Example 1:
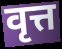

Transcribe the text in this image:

वृत्त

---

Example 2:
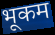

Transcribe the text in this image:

भूकम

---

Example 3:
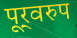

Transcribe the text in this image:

पूर्वरुप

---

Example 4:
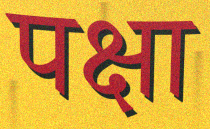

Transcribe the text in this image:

पक्षा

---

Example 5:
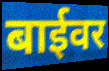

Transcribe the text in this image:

बाईवर